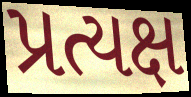
પ્રત્યક્ષ